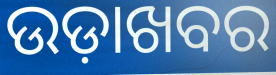
ଉଡ଼ାଖବର